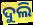
ଦୁଲି